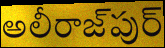
అలీరాజ్‌పుర్